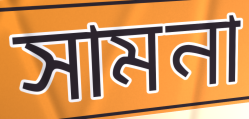
সামনা